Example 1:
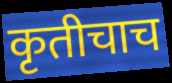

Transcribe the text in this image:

कृतीचाच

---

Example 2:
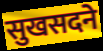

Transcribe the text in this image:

सुखसदने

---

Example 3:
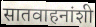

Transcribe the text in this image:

सातवाहनांशी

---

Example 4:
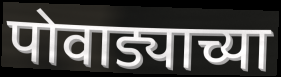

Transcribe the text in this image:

पोवाड्याच्या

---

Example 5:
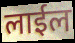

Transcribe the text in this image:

लाईल